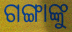
ଗଙ୍ଗାଙ୍କୁ